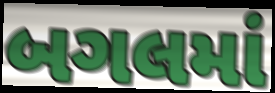
બગલમાં